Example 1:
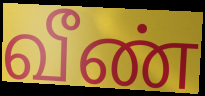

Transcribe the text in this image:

வீண்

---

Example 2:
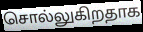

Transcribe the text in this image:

சொல்லுகிறதாக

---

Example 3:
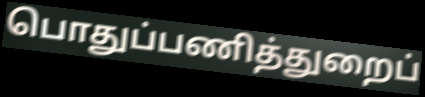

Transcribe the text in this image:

பொதுப்பணித்துறைப்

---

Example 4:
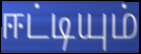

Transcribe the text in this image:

ஈட்டியும்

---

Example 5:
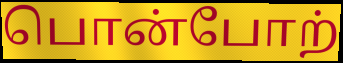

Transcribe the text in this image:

பொன்போற்